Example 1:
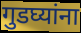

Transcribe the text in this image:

गुडघ्यांना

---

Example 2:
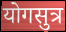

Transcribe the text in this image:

योगसुत्र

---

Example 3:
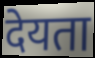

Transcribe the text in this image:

देयता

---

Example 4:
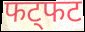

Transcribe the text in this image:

फट्फट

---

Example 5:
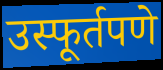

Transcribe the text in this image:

उस्फूर्तपणे